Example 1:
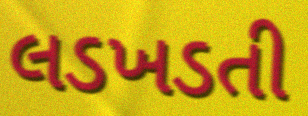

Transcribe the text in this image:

લડખડતી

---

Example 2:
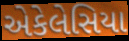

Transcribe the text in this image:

એકેલેસિયા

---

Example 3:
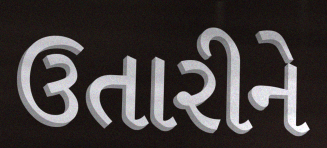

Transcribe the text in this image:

ઉતારીને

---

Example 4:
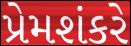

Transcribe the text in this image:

પ્રેમશંકરે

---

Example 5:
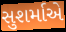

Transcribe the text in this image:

સુશર્માએ